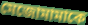
মেজোমামাকে